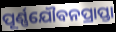
ପୂର୍ଣ୍ଣଯୌବନପ୍ରାପ୍ତା